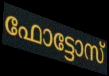
ഫോട്ടോസ്